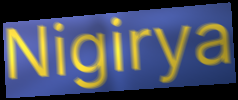
Nigirya